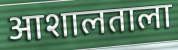
आशालताला